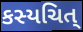
કસ્યચિત્